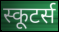
स्कूटर्स